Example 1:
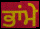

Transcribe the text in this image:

ਭਾਂਮੇ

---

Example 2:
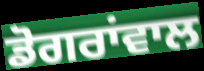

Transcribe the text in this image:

ਡੋਗਰਾਂਵਾਲ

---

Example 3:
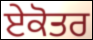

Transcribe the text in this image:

ਏਕੋਤਰ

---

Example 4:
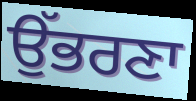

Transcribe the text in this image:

ਉੱਭਰਣਾ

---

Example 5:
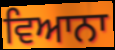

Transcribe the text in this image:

ਵਿਆਨਾ